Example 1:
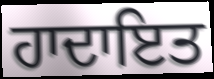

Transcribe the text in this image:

ਹਾਦਾਇਤ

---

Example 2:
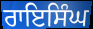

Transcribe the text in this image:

ਰਾਇਸਿੰਘ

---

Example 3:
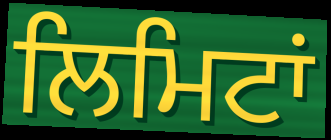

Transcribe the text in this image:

ਲਿਮਿਟਾਂ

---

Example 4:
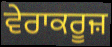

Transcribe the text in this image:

ਵੇਰਾਕਰੂਜ਼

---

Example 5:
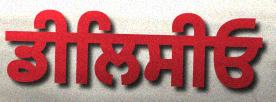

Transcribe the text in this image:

ਡੀਲਿਸੀਓ